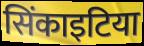
सिंकाइटिया